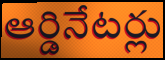
ఆర్డినేటర్లు